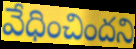
వేధించిందని